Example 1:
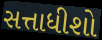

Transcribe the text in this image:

સત્તાધીશો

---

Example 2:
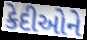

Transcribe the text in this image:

કેદીઓને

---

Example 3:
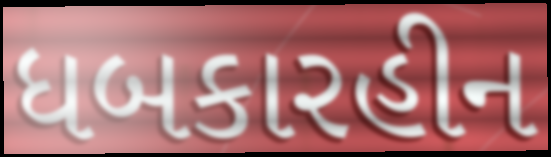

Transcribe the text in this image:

ધબકારહીન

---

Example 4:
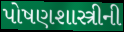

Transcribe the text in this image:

પોષણશાસ્ત્રીની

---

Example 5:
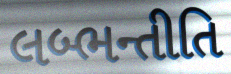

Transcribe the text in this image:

લબ્ભન્તીતિ